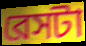
রেসটা